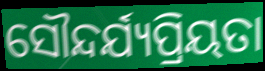
ସୌନ୍ଦର୍ଯ୍ୟପ୍ରିୟତା